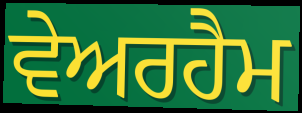
ਵੇਅਰਹੈਮ